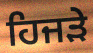
ਹਿਜੜੇ